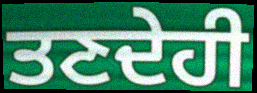
ਤਣਦੇਹੀ